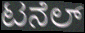
ಟನೆಲ್